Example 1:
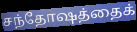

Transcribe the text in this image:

சந்தோஷத்தைக்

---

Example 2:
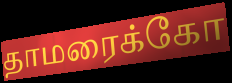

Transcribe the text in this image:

தாமரைக்கோ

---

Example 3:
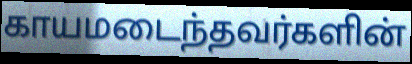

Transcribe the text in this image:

காயமடைந்தவர்களின்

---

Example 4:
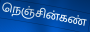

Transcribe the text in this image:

நெஞ்சின்கண்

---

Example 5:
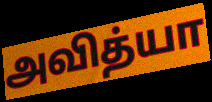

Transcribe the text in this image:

அவித்யா